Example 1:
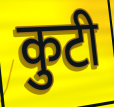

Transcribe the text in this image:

कुटी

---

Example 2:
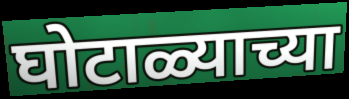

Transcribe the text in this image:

घोटाळ्याच्या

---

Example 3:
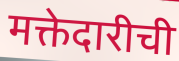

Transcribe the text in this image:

मक्तेदारीची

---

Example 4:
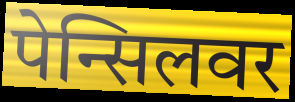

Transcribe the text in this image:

पेन्सिलवर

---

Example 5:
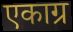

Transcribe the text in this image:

एकाग्र